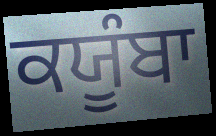
ਕਯੂੰਬਾ